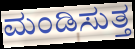
ಮಂಡಿಸುತ್ತ